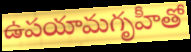
ఉపయామగృహీతో